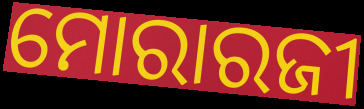
ମୋରାରଜୀ